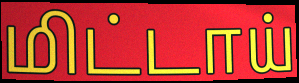
மிட்டாய்